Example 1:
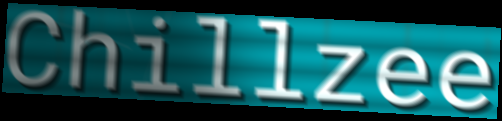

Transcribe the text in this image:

Chillzee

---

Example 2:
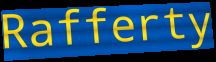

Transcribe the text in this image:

Rafferty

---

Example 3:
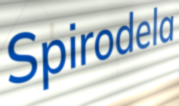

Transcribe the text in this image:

Spirodela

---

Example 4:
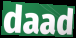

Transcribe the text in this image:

daad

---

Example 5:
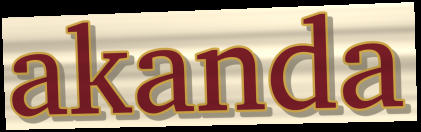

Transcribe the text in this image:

akanda